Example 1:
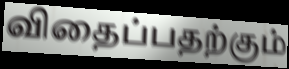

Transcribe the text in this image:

விதைப்பதற்கும்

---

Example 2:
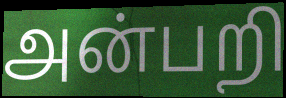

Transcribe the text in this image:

அன்பறி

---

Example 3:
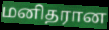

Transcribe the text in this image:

மனிதரான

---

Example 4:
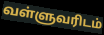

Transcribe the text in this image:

வள்ளுவரிடம்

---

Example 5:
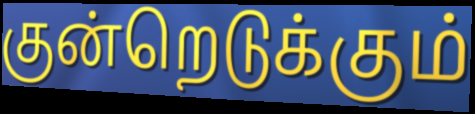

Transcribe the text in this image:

குன்றெடுக்கும்